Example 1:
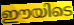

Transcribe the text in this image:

ഈയിടെ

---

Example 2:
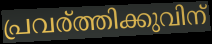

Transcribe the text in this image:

പ്രവര്ത്തിക്കുവിന്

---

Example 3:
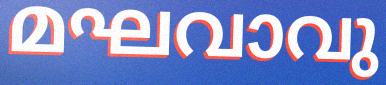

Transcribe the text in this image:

മഘവാവു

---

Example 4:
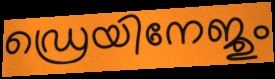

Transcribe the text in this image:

ഡ്രെയിനേജും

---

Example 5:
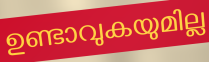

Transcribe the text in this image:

ഉണ്ടാവുകയുമില്ല